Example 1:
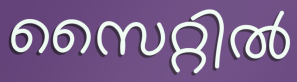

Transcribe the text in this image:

സൈറ്റിൽ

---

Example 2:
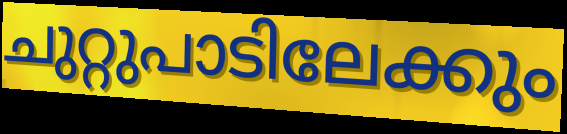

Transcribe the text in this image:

ചുറ്റുപാടിലേക്കും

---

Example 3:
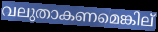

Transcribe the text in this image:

വലുതാകണമെങ്കില്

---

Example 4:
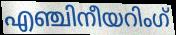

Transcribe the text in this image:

എഞ്ചിനീയറിംഗ്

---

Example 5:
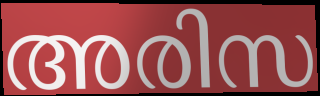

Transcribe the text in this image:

അരിസ